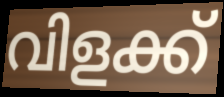
വിളക്ക്